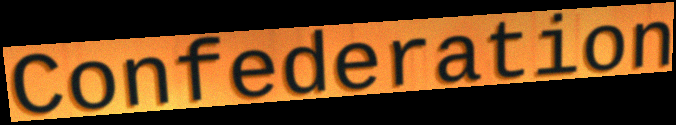
Confederation